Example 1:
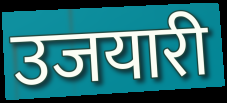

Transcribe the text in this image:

उजयारी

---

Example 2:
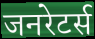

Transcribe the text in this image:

जनरेटर्स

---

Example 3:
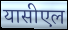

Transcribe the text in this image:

यासीएल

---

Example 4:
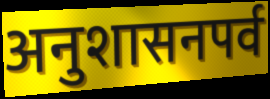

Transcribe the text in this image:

अनुशासनपर्व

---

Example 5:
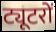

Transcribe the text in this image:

ट्यूटरों